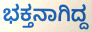
ಭಕ್ತನಾಗಿದ್ದ